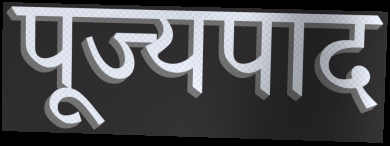
पूज्यपाद